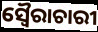
ସ୍ୱୈରାଚାରୀ